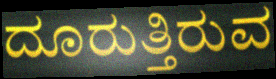
ದೂರುತ್ತಿರುವ